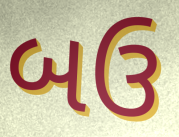
બઉ